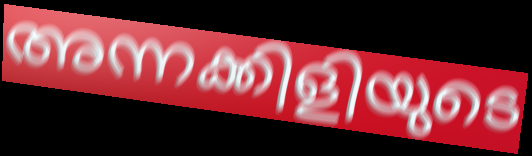
അന്നക്കിളിയുടെ